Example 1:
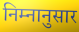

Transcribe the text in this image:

निम्नानुसार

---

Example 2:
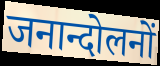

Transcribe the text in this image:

जनान्दोलनों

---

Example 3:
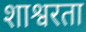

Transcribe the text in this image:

शाश्वरता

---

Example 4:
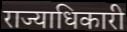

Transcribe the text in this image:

राज्याधिकारी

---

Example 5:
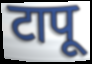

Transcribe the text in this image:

टापू